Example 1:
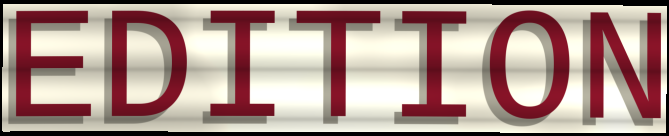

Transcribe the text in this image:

EDITION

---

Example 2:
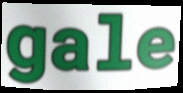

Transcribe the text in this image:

gale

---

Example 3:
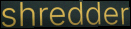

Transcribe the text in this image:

shredder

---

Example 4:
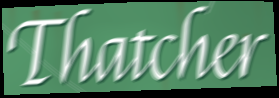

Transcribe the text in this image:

Thatcher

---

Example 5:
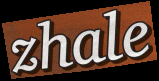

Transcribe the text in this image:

zhale